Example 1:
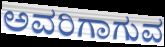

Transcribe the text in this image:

ಅವರಿಗಾಗುವ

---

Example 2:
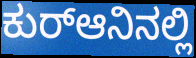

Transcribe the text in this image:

ಕುರ್‍ಆನಿನಲ್ಲಿ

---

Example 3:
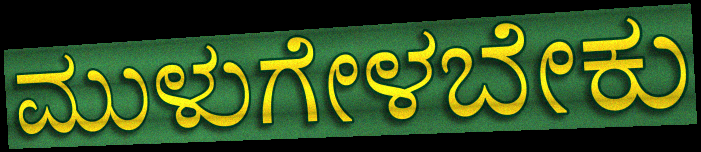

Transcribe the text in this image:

ಮುಳುಗೇಳಬೇಕು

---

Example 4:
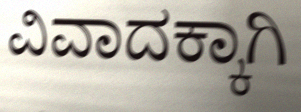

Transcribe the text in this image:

ವಿವಾದಕ್ಕಾಗಿ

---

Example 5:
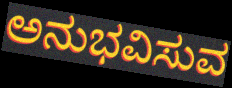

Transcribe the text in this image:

ಅನುಭವಿಸುವ